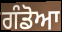
ਗੰਡੋਆ